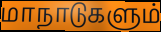
மாநாடுகளும்